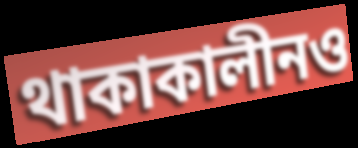
থাকাকালীনও